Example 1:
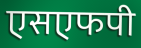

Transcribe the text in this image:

एसएफपी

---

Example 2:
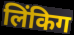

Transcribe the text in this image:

लिंकिग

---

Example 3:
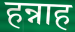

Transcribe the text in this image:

हन्नाह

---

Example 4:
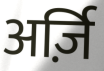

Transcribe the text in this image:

अर्ज़ि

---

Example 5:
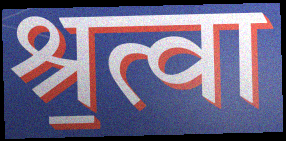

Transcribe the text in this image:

श्र॒त्वा